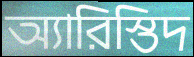
অ্যারিস্তিদ